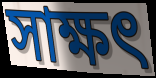
সাক্ষৎ